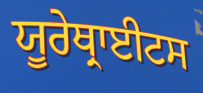
ਯੂਰੇਥ੍ਰਾਈਟਸ